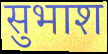
सुभाश